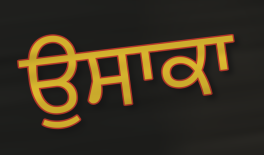
ਉਸਾਕਾ